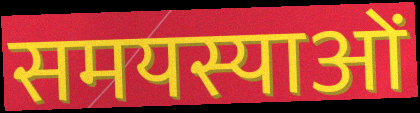
समयस्याओं